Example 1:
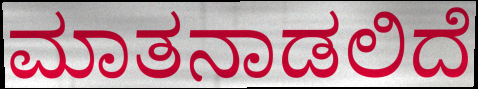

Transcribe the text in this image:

ಮಾತನಾಡಲಿದೆ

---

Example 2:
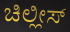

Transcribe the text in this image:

ಚಿಲ್ಲೀಸ್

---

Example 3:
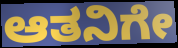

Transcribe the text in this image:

ಆತನಿಗೇ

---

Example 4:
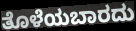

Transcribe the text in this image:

ತೊಳೆಯಬಾರದು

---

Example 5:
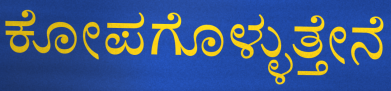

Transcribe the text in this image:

ಕೋಪಗೊಳ್ಳುತ್ತೇನೆ